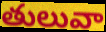
తులువా